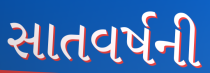
સાતવર્ષની